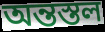
অন্তস্তল